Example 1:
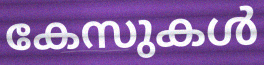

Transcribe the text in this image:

കേസുകൾ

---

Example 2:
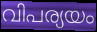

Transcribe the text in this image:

വിപര്യയം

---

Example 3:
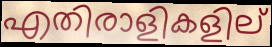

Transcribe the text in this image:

എതിരാളികളില്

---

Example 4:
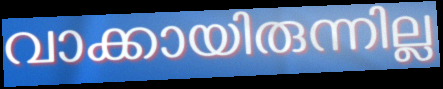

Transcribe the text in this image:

വാക്കായിരുന്നില്ല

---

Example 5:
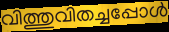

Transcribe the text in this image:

വിത്തുവിതച്ചപ്പോൾ